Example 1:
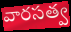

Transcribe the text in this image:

వారసత్వ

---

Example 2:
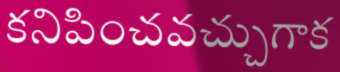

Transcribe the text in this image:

కనిపించవచ్చుగాక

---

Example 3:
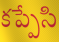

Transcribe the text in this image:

కప్పేసి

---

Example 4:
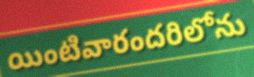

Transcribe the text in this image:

యింటివారందరిలోను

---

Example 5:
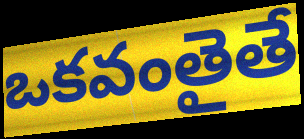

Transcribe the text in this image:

ఒకవంతైతే